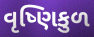
વૃષ્ણિકુળ